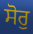
ਸੋਰੁ